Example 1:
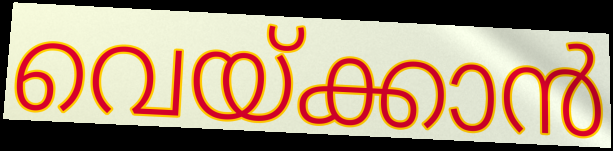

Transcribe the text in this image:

വെയ്ക്കാൻ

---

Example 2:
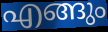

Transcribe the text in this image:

എങ്ങും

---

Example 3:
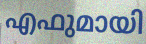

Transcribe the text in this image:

എഫുമായി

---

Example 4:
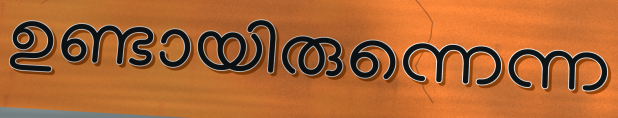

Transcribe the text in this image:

ഉണ്ടായിരുന്നെന്ന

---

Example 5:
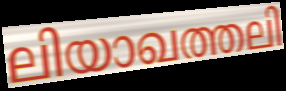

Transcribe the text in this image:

ലിയാഖത്തലി